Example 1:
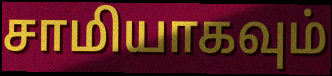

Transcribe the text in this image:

சாமியாகவும்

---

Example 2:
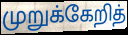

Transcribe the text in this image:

முறுக்கேறித்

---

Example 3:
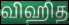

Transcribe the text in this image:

விஹித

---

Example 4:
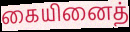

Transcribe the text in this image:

கையினைத்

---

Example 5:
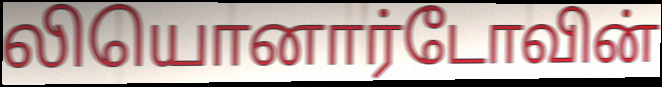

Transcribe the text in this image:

லியொனார்டோவின்